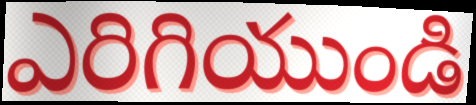
ఎరిగియుండి